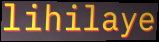
lihilaye